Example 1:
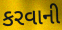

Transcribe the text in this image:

કરવાની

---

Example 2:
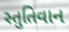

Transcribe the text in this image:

સ્તુતિવાન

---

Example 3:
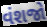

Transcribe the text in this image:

વંશજો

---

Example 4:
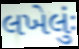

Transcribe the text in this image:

લખેલુંઃ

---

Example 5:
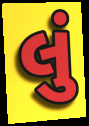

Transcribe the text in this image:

લું